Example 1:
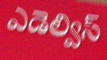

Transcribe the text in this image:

ఎడెల్విస్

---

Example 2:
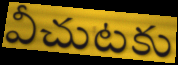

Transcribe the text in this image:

వీచుటకు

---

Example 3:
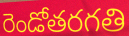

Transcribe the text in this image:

రెండోతరగతి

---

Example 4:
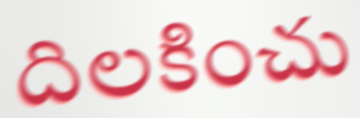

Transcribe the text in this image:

దిలకించు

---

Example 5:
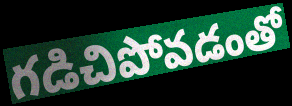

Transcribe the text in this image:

గడిచిపోవడంతో